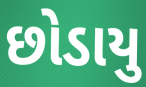
છોડાયુ